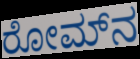
ರೋಮ್‌ನ